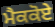
ਮੈਕਕੋਏ